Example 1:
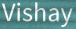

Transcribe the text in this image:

Vishay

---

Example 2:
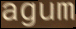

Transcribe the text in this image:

agum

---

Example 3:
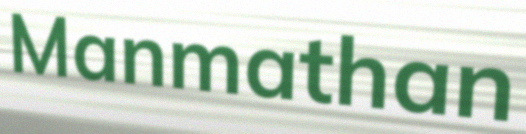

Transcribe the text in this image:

Manmathan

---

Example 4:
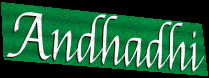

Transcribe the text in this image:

Andhadhi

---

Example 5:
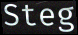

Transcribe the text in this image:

Steg